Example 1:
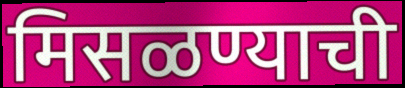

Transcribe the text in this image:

मिसळण्याची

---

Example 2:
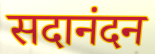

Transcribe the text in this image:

सदानंदन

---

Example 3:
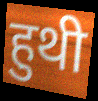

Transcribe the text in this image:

हुथी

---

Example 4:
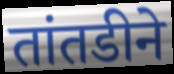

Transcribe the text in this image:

तांतडीने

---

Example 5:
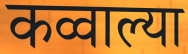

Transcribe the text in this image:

कव्वाल्या